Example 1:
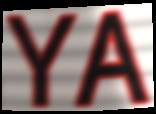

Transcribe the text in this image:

YA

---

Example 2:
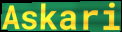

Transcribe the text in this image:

Askari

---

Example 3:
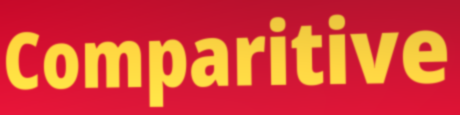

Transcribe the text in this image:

Comparitive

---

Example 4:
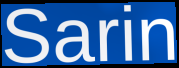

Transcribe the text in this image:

Sarin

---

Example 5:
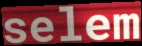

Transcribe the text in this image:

selem